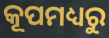
କୂପମଧ୍ୟରୁ